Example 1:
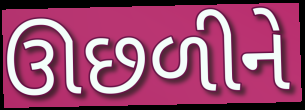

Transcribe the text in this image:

ઊછળીને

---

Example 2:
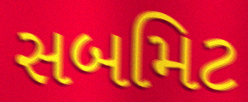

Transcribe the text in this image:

સબમિટ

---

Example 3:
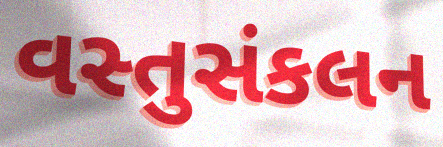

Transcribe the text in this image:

વસ્તુસંકલન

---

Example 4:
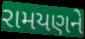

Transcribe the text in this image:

રામયણને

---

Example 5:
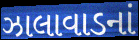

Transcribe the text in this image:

ઝાલાવાડનાં